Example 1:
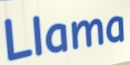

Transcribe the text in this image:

Llama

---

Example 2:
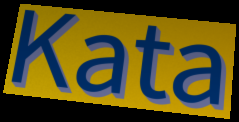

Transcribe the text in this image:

Kata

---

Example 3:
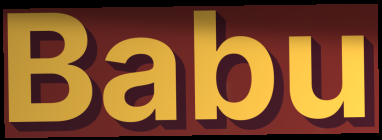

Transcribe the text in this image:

Babu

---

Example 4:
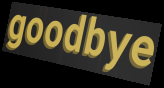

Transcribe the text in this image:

goodbye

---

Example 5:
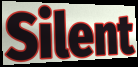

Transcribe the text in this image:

Silent